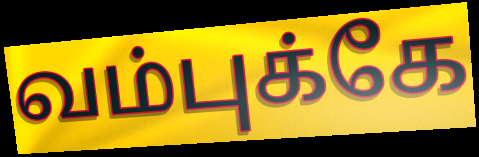
வம்புக்கே